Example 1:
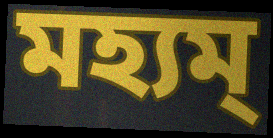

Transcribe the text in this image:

মহ্যম্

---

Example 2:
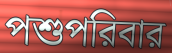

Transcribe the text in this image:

পশুপরিবার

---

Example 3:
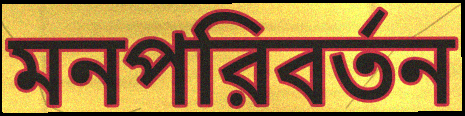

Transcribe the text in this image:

মনপরিবর্তন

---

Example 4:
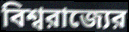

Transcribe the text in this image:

বিশ্বরাজ্যের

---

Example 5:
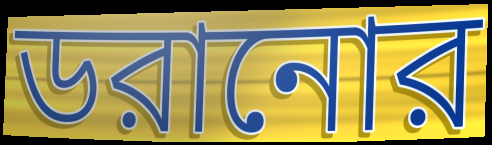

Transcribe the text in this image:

ডরানোর